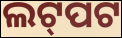
ଲଟ୍‌ପଟ